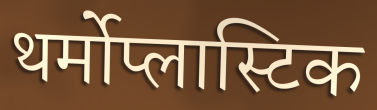
थर्मोप्लास्टिक